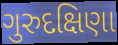
ગુરુદક્ષિણા